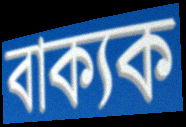
বাক্যক